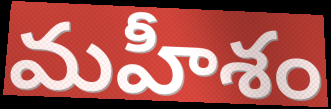
మహీశం